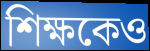
শিক্ষকেও